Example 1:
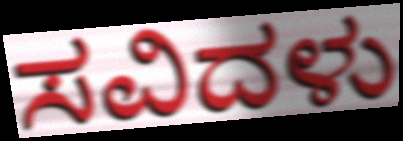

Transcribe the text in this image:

ಸವಿದಳು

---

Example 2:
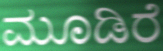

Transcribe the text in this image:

ಮೂಡಿರೆ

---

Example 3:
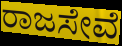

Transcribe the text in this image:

ರಾಜಸೇವೆ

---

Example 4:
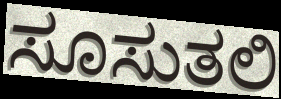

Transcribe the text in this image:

ಸೂಸುತಲಿ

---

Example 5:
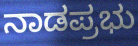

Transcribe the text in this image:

ನಾಡಪ್ರಭು